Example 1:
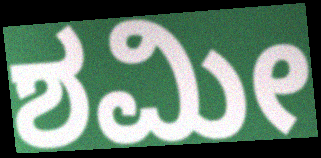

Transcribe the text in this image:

ಶಮೀ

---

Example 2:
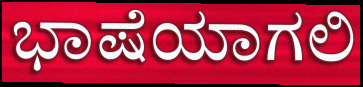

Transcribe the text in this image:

ಭಾಷೆಯಾಗಲಿ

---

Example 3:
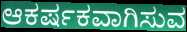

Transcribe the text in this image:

ಆಕರ್ಷಕವಾಗಿಸುವ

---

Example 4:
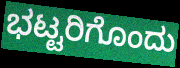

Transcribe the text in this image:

ಭಟ್ಟರಿಗೊಂದು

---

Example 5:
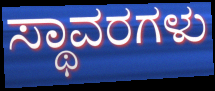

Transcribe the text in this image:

ಸ್ಥಾವರಗಳು